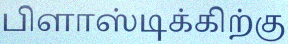
பிளாஸ்டிக்கிற்கு